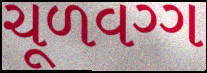
ચૂળવગ્ગ